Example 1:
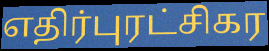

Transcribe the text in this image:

எதிர்புரட்சிகர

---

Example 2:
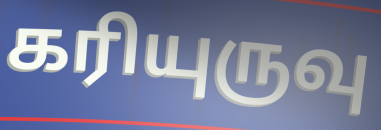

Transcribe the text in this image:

கரியுருவு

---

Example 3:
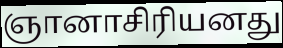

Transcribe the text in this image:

ஞானாசிரியனது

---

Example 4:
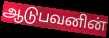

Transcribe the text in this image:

ஆடுபவனின்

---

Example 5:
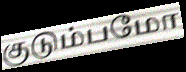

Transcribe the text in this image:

குடும்பமோ